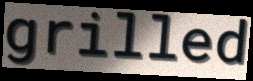
grilled